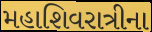
મહાશિવરાત્રીના